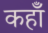
कहॉँ